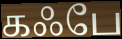
கஃபே